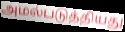
அமல்படுத்தியது